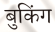
बुकिंग